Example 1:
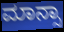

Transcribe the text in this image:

ಮಾನ್ಸಾ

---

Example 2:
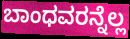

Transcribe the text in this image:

ಬಾಂಧವರನ್ನೆಲ್ಲ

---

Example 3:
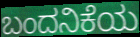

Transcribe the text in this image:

ಬಂದನಿಕೆಯ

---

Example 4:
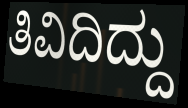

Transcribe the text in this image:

ತಿವಿದಿದ್ದು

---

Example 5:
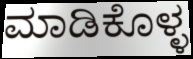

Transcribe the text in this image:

ಮಾಡಿಕೊಳ್ಳ